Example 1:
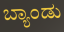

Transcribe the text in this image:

ಬ್ಯಾಂಡು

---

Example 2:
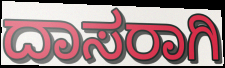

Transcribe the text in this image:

ದಾಸರಾಗಿ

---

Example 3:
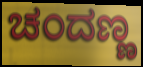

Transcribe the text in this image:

ಚಂದಣ್ಣ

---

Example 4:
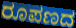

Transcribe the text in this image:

ರೂಪಣದ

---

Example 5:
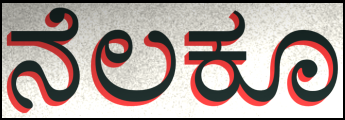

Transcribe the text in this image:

ನೆಲಕೂ